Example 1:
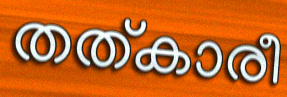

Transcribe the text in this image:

തത്കാരീ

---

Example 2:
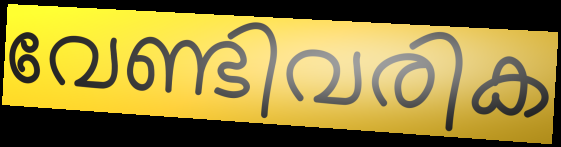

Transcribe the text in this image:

വേണ്ടിവരിക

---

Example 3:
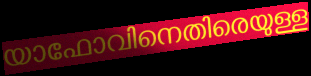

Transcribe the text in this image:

യാഫോവിനെതിരെയുള്ള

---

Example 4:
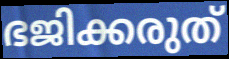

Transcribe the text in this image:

ഭജിക്കരുത്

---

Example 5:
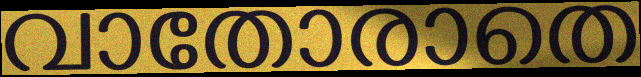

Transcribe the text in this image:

വാതോരാതെ